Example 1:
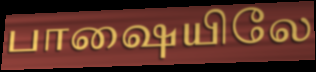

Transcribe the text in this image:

பாஷையிலே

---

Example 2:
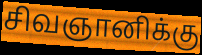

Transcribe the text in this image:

சிவஞானிக்கு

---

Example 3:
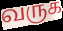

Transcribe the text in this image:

வருக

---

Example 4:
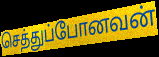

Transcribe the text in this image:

செத்துப்போனவன்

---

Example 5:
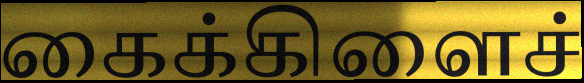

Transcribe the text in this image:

கைக்கிளைச்